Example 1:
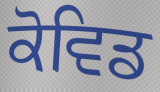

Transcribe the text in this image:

ਕੋਵਿਡ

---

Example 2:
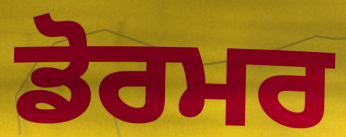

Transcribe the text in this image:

ਡੋਰਮਰ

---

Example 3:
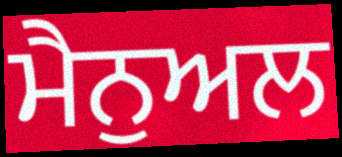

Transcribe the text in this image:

ਮੈਨੁਅਲ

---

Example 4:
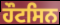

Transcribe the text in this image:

ਹੌਟਸਿਨ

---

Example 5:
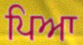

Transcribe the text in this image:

ਪਿਆ